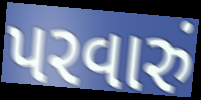
પરવારું